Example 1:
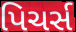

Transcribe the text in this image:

પિચર્સ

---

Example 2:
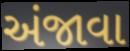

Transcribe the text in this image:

અંજાવા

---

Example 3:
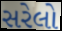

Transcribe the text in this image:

સરેલો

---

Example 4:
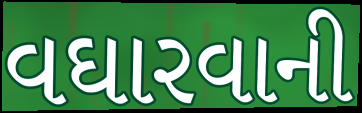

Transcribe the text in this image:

વઘારવાની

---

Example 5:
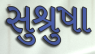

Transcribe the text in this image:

સુશ્રુષા